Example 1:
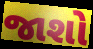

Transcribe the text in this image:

જાશો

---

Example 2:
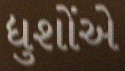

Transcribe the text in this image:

દ્યુશોંએ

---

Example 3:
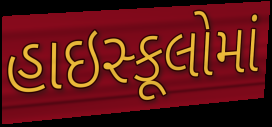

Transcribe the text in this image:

હાઇસ્કૂલોમાં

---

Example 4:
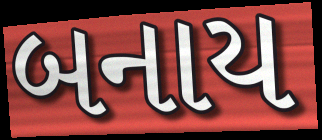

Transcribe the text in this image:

બનાય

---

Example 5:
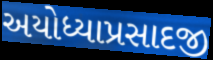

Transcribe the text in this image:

અયોધ્યાપ્રસાદજી